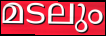
മടലും